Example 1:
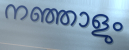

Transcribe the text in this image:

നഞ്ഞാളും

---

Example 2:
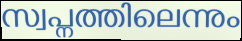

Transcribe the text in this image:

സ്വപ്നത്തിലെന്നും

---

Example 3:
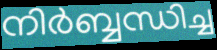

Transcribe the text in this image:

നിർബ്ബന്ധിച്ച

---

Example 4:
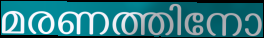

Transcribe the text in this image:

മരണത്തിനോ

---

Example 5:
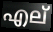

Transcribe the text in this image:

എല്